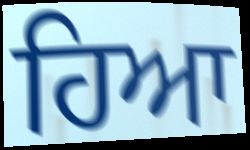
ਹਿਆ